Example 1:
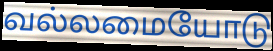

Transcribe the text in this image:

வல்லமையோடு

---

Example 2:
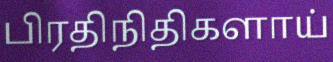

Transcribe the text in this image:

பிரதிநிதிகளாய்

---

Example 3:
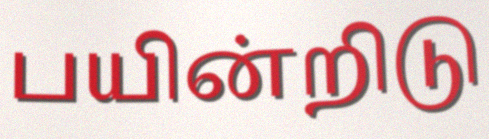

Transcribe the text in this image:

பயின்றிடு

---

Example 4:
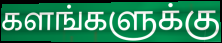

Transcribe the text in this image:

களங்களுக்கு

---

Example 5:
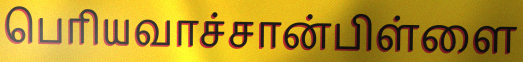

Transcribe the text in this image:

பெரியவாச்சான்பிள்ளை